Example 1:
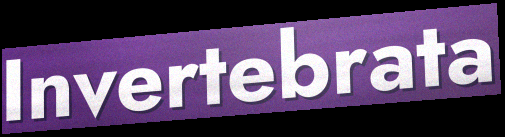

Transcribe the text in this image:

Invertebrata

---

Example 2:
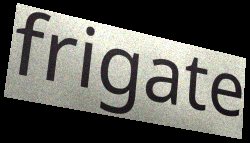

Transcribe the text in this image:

frigate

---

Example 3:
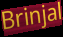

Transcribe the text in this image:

Brinjal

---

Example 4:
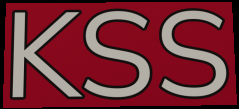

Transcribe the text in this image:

KSS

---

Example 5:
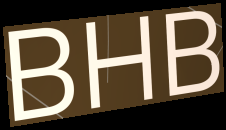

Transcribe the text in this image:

BHB